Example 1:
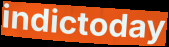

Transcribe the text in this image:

indictoday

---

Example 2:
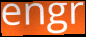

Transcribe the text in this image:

engr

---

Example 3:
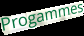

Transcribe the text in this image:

Progammes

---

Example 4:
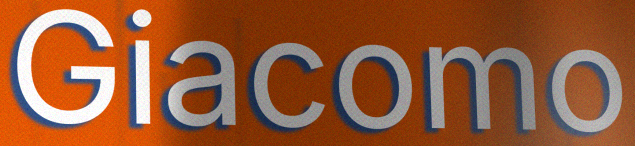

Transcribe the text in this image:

Giacomo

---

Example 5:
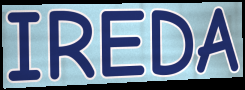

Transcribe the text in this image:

IREDA